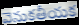
వెనుకతీయక